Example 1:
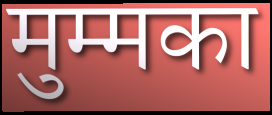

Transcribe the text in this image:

मुम्मका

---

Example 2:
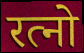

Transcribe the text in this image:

रत्नो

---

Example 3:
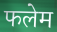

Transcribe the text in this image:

फलेम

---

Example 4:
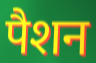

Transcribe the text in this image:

पैशन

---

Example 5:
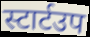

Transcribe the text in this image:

स्टार्टउप